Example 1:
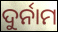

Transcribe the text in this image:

ଦୁର୍ନାମ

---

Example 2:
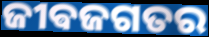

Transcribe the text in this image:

ଜୀଵଜଗତର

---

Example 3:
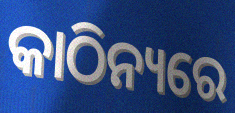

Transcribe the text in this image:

କାଠିନ୍ୟରେ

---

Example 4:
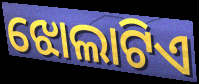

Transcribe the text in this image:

ଝୋଲାଟିଏ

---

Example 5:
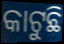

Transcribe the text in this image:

କାଟୁଛି